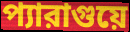
প্যারাগুয়ে